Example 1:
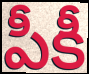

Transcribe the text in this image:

పీకీ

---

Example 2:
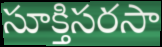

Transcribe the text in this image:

సూక్తిసరసా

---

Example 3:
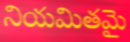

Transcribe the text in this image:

నియమితమై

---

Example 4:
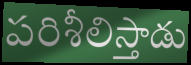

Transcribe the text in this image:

పరిశీలిస్తాడు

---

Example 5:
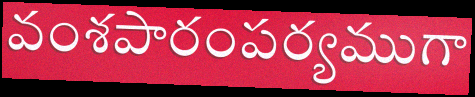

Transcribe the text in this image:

వంశపారంపర్యముగా